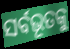
ସର୍ବଭୂତକୁ